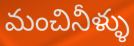
మంచినీళ్ళు